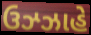
ઉઝ્ઝાહે